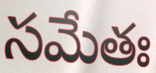
సమేతః